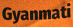
Gyanmati